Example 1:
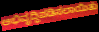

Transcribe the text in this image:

ಅಭಿವೃದ್ಧಿಪಡಿಸಲಾಯಿತು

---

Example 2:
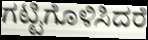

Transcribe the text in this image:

ಗಟ್ಟಿಗೊಳಿಸಿದರೆ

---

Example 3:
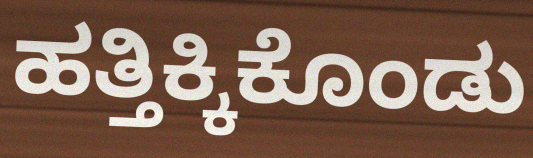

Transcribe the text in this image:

ಹತ್ತಿಕ್ಕಿಕೊಂಡು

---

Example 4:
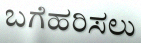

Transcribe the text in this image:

ಬಗೆಹರಿಸಲು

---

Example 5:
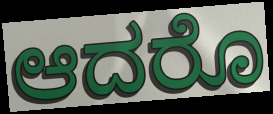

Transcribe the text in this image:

ಆದರೊ